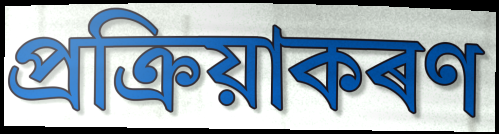
প্ৰক্ৰিয়াকৰণ